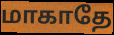
மாகாதே